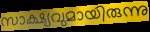
സാക്ഷ്യവുമായിരുന്നു